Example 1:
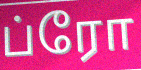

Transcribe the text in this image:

ப்ரோ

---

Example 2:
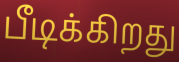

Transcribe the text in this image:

பீடிக்கிறது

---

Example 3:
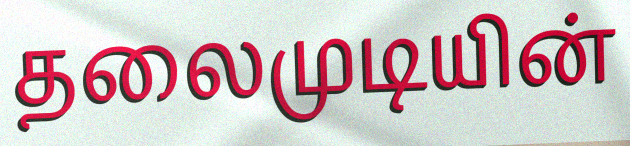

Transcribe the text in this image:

தலைமுடியின்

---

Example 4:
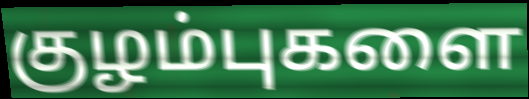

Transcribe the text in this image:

குழம்புகளை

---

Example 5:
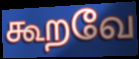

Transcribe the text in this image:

கூறவே